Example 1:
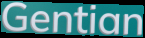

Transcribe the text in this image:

Gentian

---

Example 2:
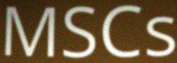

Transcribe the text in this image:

MSCs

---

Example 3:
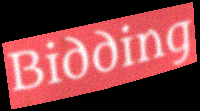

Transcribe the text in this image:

Bidding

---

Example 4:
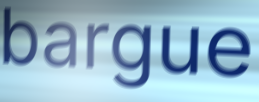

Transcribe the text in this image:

bargue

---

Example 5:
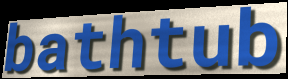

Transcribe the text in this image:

bathtub